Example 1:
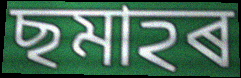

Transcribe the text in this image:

ছমাহৰ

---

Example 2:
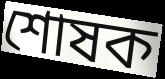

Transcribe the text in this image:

শোষক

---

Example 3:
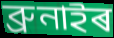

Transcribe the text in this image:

ব্ৰুনাইৰ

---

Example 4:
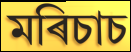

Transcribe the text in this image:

মৰিচাচ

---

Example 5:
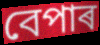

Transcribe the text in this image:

বেপাৰ